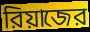
রিয়াজের